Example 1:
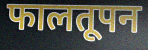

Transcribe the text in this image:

फालतूपन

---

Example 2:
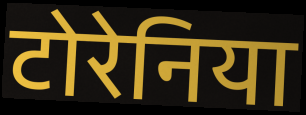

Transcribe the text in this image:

टोरेनिया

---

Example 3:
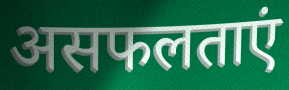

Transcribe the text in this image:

असफलताएं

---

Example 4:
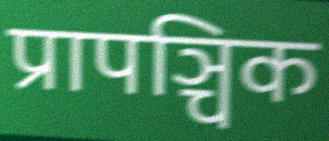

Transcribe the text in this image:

प्रापञ्चिक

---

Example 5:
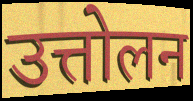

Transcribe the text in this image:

उत्तोलन